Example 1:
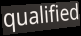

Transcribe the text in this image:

qualified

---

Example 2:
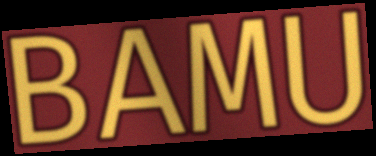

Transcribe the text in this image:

BAMU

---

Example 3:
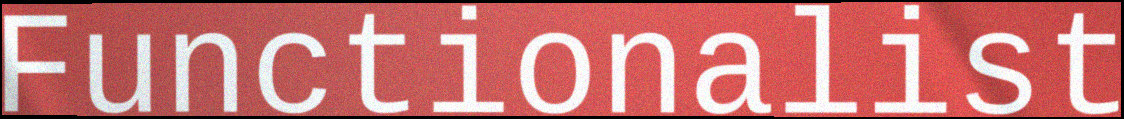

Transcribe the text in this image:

Functionalist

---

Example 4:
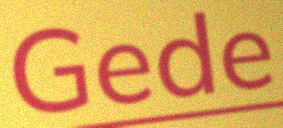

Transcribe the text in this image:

Gede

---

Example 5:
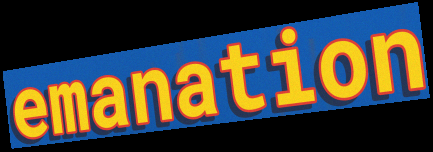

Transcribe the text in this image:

emanation